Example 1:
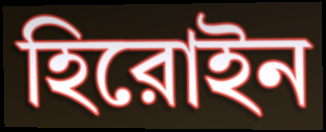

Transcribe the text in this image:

হিরোইন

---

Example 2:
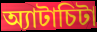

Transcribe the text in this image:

অ্যাটাচিটা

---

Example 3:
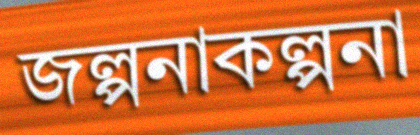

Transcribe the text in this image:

জল্পনাকল্পনা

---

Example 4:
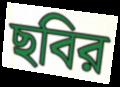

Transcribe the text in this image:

ছবির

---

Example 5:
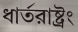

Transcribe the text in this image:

ধার্তরাষ্ট্রং